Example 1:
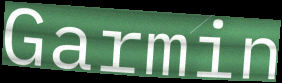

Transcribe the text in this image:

Garmin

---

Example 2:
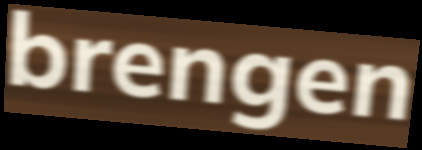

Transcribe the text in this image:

brengen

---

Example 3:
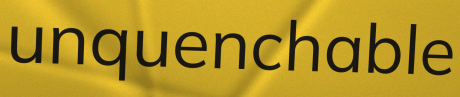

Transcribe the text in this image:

unquenchable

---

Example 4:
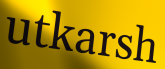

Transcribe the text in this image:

utkarsh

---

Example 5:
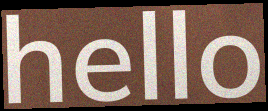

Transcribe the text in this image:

hello